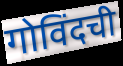
गोविंदची